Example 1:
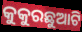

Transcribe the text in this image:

କୁକୁରଛୁଆଟି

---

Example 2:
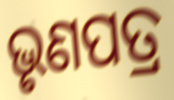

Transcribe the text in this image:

ଭୃଣପତ୍ର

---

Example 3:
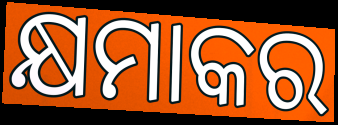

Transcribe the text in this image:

କ୍ଷମାକର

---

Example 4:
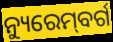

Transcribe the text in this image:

ନ୍ୟୁରେମ୍‌ବର୍ଗ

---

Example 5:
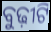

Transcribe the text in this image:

ବୁଢ଼ୀଟି